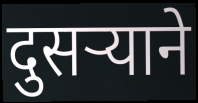
दुसऱ्याने